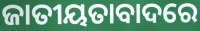
ଜାତୀୟତାବାଦରେ